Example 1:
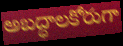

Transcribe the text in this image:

అబద్ధాలకోరుగా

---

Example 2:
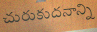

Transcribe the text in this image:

చురుకుదనాన్ని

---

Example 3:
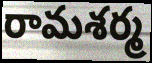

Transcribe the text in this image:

రామశర్మ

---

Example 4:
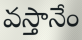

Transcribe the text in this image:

వస్తానేం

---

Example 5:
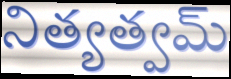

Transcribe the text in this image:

నిత్యత్వమ్